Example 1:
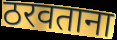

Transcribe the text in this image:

ठरवताना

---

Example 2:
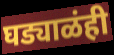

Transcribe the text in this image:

घड्याळंही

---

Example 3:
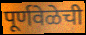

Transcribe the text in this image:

पूर्णवेळेची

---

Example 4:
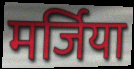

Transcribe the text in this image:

मर्जिया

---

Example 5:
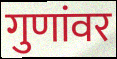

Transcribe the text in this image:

गुणांवर